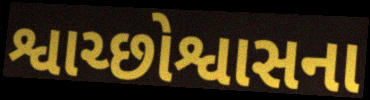
શ્વાચ્છોશ્વાસના